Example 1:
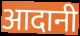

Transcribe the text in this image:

आदानी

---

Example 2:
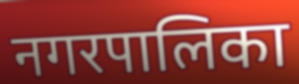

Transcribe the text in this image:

नगरपालिका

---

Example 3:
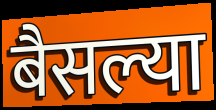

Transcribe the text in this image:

बैसल्या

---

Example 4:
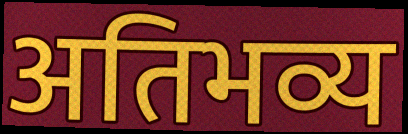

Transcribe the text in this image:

अतिभव्य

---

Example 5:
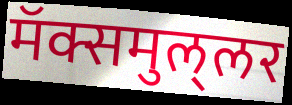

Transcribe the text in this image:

मॅक्समुल्लर